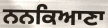
ਨਨਕਿਆਣਾ